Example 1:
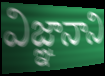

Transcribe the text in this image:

విజ్ఞానాని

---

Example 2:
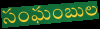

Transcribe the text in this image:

సంఘంబుల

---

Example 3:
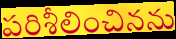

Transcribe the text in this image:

పరిశీలించినను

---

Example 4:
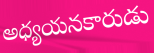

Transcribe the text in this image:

అధ్యయనకారుడు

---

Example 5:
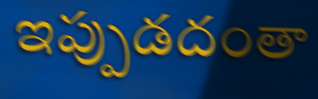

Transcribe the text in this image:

ఇప్పుడదంతా